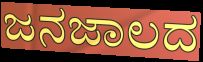
ಜನಜಾಲದ